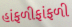
હાંફળીફાંફળી